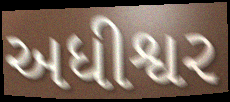
અધીશ્વર